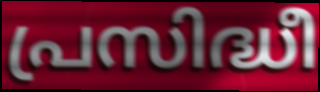
പ്രസിദ്ധീ